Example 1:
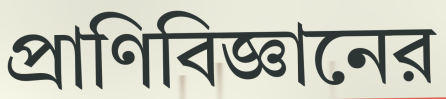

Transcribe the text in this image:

প্রাণিবিজ্ঞানের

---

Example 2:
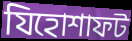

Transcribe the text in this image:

যিহোশাফট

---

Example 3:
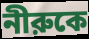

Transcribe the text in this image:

নীরুকে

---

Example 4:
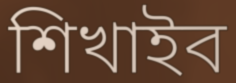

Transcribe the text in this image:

শিখাইব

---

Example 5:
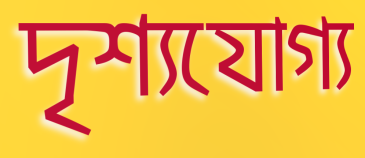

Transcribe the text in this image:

দৃশ্যযোগ্য